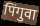
पिंगुवा